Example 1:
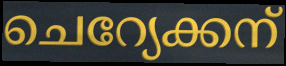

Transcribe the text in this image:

ചെറ്യേക്കന്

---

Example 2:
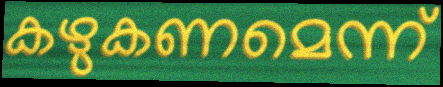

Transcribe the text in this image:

കഴുകണമെന്ന്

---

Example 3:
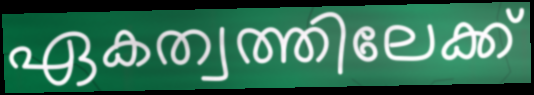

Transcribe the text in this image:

ഏകത്വത്തിലേക്ക്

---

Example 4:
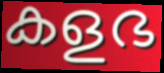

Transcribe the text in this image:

കളഭ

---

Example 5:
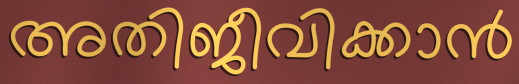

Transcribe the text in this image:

അതിജീവിക്കാൻ